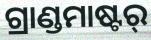
ଗ୍ରାଣ୍ଡମାଷ୍ଟର୍